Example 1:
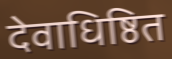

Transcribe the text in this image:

देवाधिष्ठित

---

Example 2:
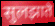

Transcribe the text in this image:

सुलझाते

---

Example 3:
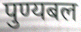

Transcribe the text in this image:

पुण्यबल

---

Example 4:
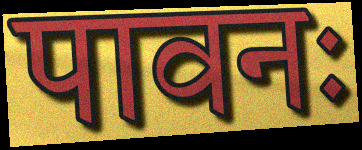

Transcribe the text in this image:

पावनः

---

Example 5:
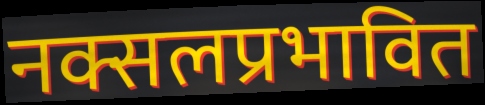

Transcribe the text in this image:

नक्सलप्रभावित